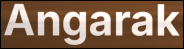
Angarak